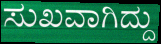
ಸುಖವಾಗಿದ್ದು